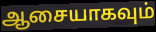
ஆசையாகவும்